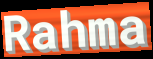
Rahma